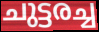
ചുട്ടരച്ച